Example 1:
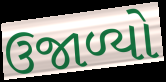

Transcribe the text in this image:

ઉજાળ્યો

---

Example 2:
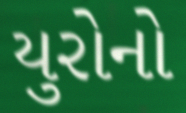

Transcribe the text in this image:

યુરોનો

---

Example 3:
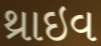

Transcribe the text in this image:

થ્રાઇવ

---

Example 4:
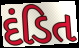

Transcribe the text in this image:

દંડિત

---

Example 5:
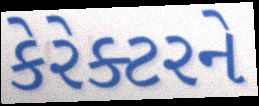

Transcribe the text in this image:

કેરેક્ટરને